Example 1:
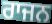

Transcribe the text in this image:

ਰਾਜਨ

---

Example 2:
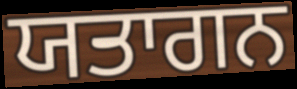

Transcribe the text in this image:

ਯਤਾਗਨ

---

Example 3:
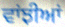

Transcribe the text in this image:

ਵਾਂਝੀਆਂ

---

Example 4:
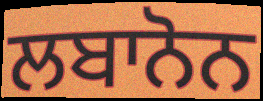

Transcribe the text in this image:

ਲਬਾਨੋਨ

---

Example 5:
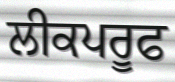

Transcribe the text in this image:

ਲੀਕਪਰੂਫ